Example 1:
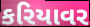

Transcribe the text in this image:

કરિયાવર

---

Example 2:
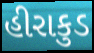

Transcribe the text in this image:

હીરાકુડ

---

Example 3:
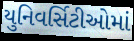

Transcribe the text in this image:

યુનિવર્સિટીઓમાં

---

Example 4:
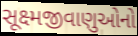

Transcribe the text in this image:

સૂક્ષ્મજીવાણુઓનો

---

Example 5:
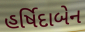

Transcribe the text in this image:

હર્ષિદાબેન